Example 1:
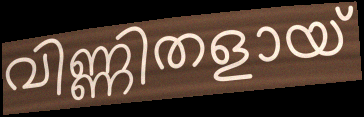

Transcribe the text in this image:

വിണ്ണിതളായ്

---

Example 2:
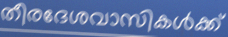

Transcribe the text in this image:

തീരദേശവാസികൾക്ക്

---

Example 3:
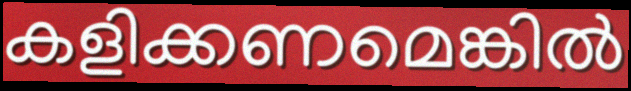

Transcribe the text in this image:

കളിക്കണമെങ്കിൽ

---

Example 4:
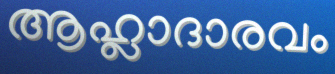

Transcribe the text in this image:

ആഹ്ലാദാരവം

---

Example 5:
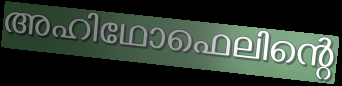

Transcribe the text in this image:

അഹിഥോഫെലിന്റെ